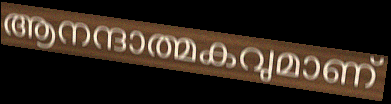
ആനന്ദാത്മകവുമാണ്